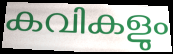
കവികളും